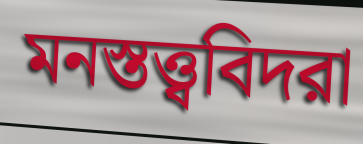
মনস্তত্ত্ববিদরা